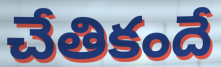
చేతికందే